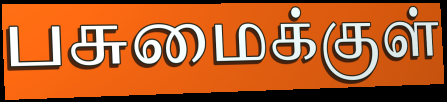
பசுமைக்குள்